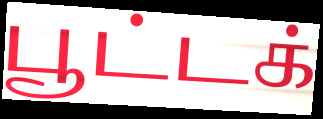
பூட்டக்